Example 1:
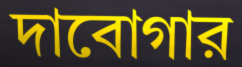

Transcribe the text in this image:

দাবোগার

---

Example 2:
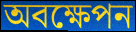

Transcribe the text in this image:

অবক্ষেপন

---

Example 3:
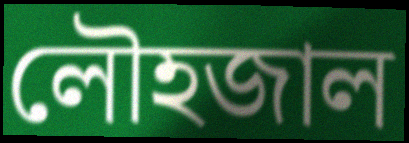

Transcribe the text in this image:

লৌহজাল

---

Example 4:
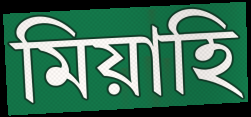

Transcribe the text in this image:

মিয়াহি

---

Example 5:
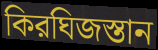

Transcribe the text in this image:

কিরঘিজস্তান